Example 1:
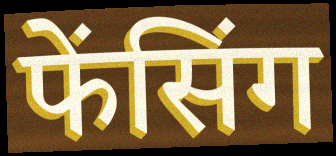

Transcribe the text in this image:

फेंसिंग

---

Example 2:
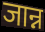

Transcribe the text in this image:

जान्न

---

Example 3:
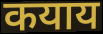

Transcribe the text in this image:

कयाय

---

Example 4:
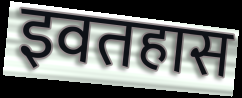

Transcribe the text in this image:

इवतहास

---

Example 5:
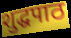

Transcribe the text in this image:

शुद्धपाठ